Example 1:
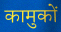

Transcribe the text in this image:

कामुकों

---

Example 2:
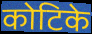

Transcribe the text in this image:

कोटिके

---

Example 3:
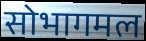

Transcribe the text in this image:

सोभागमल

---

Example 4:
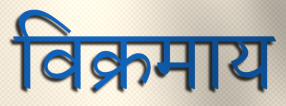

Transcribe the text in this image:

विक्रमाय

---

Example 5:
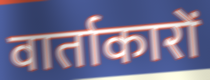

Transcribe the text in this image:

वार्ताकारों